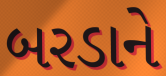
બરડાને